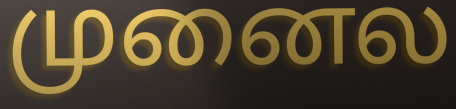
முனைல